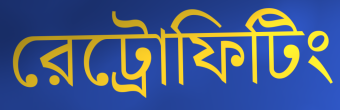
রেট্রোফিটিং